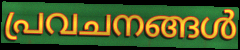
പ്രവചനങ്ങൾ